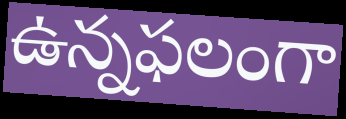
ఉన్నఫలంగా